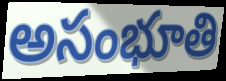
అసంభూతి